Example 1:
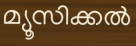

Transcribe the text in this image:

മ്യൂസിക്കൽ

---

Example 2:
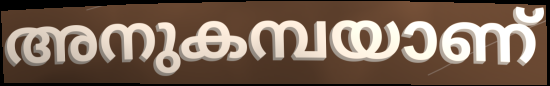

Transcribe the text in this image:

അനുകമ്പയാണ്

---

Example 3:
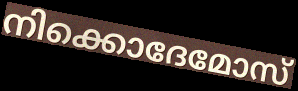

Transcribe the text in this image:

നിക്കൊദേമോസ്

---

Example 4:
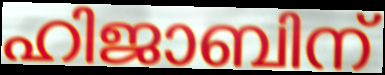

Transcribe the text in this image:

ഹിജാബിന്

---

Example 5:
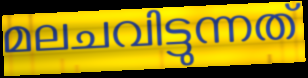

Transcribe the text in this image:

മലചവിട്ടുന്നത്